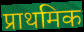
प्राथमिक